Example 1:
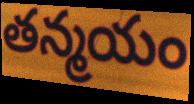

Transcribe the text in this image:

తన్మయం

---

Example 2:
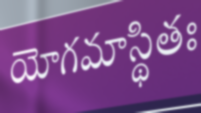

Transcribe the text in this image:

యోగమాస్థితః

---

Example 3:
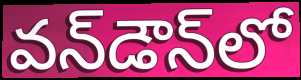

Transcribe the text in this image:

వన్‌డౌన్‌లో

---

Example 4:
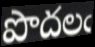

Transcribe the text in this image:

పొదలఁ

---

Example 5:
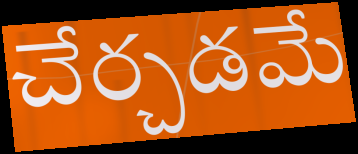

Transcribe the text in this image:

చేర్చడమే